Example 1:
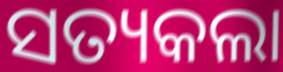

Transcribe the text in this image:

ସତ୍ୟକଲା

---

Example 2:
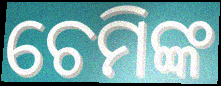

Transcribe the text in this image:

ଚେମିଙ୍କ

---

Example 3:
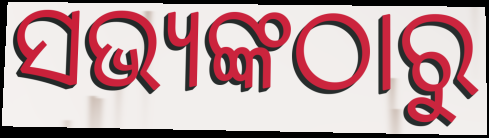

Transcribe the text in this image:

ସଭ୍ୟଙ୍କଠାରୁ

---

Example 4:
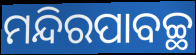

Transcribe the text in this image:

ମନ୍ଦିରପାବଚ୍ଛ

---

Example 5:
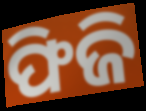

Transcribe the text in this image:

ଫିଜି